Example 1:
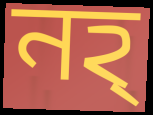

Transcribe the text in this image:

নহ্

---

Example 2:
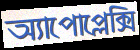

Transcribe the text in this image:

অ্যাপোপ্লেক্সি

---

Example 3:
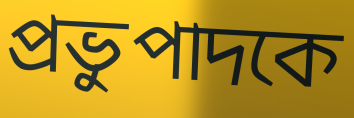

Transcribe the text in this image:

প্রভুপাদকে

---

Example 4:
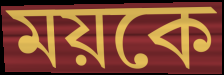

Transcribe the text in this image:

ময়কে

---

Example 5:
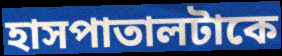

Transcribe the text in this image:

হাসপাতালটাকে